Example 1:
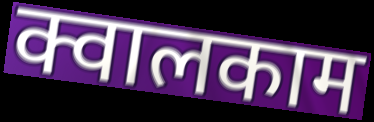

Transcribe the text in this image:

क्वालकाम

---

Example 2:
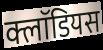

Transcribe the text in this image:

क्लॉडियस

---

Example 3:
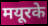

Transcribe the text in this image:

मयूरके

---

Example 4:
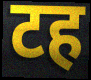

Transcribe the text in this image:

टह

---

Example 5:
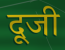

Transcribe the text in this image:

दूजी